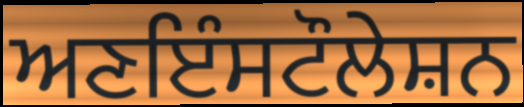
ਅਣਇੰਸਟੌਲੇਸ਼ਨ